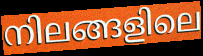
നിലങ്ങളിലെ